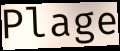
Plage